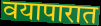
वयापारात